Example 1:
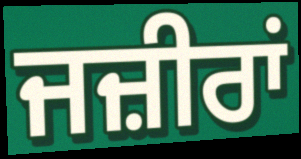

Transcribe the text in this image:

ਜਜ਼ੀਰਾਂ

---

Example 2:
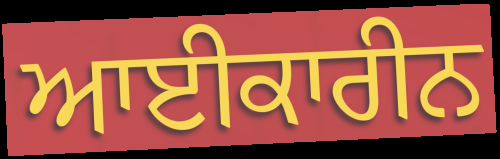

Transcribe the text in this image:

ਆਈਕਾਰੀਨ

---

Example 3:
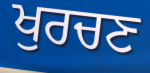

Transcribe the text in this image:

ਖੁਰਚਣ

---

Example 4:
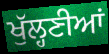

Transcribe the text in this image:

ਖੁੱਲ੍ਹਣੀਆਂ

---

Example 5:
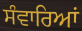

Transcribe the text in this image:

ਸੰਵਾਰਿਆਂ